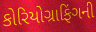
કોરિયોગ્રાફિંગની